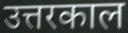
उत्तरकाल